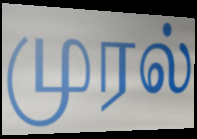
முரல்